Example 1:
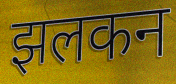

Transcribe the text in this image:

झलकन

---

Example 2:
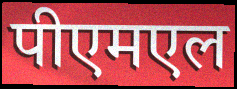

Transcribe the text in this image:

पीएमएल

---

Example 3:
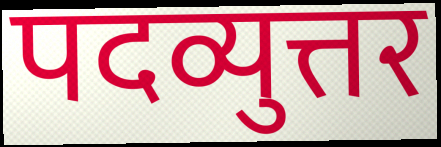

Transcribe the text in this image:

पदव्युत्तर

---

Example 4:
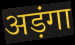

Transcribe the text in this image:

अड़ंगा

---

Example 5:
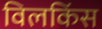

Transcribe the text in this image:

विलकिंस